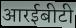
आरईबीटी